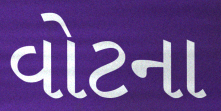
વોટના